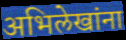
अभिलेखांना